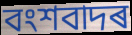
বংশবাদৰ